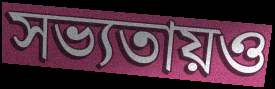
সভ্যতায়ও